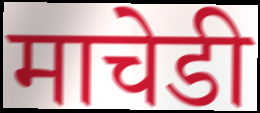
माचेडी